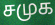
சமுக